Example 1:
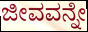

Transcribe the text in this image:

ಜೀವವನ್ನೇ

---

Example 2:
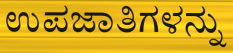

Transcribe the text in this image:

ಉಪಜಾತಿಗಳನ್ನು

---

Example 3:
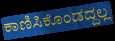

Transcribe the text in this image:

ಕಾಣಿಸಿಕೊಂಡದ್ದಲ್ಲ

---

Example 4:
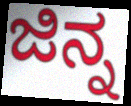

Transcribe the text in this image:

ಜಿನ್ನ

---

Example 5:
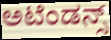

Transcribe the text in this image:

ಅಟೆಂಡನ್ಸ್